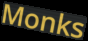
Monks